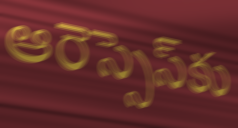
ఆరెస్సెస్‌కు